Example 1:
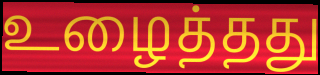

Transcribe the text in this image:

உழைத்தது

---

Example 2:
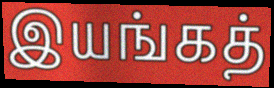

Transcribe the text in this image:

இயங்கத்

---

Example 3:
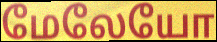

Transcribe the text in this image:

மேலேயோ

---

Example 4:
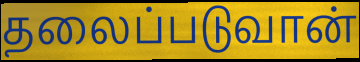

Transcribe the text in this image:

தலைப்படுவான்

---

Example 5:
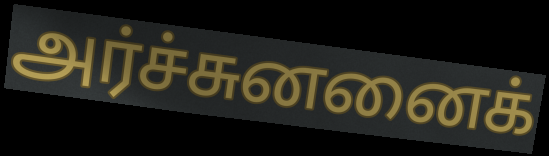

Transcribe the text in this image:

அர்ச்சுனனைக்